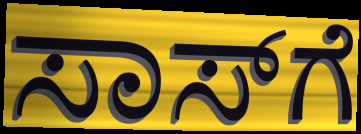
ಸಾಸ್‌ಗೆ